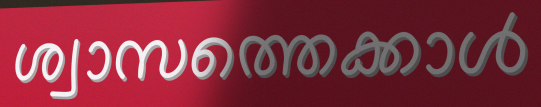
ശ്വാസത്തെക്കാൾ